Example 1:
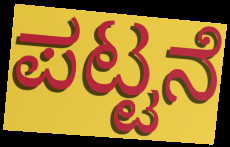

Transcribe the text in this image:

ಪಟ್ಟನೆ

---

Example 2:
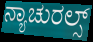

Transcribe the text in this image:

ನ್ಯಾಚುರಲ್ಸ್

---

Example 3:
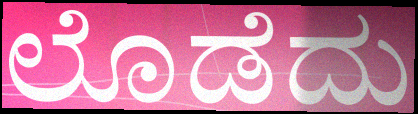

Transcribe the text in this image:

ಲೊಡೆದು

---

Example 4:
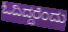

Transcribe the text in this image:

ಓದಿದ್ದರೆಂದು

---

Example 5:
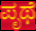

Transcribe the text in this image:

ಪೃಥೆ